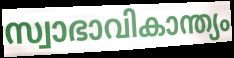
സ്വാഭാവികാന്ത്യം